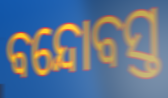
ବନ୍ଦୋବସ୍ତ